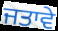
ਜਤਾਵੇ